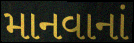
માનવાનાં